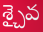
శ్చైవ